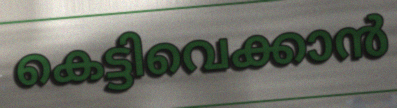
കെട്ടിവെക്കാൻ